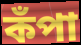
কঁপা